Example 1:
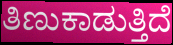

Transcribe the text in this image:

ತಿಣುಕಾಡುತ್ತಿದೆ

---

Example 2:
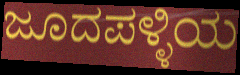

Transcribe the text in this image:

ಜೂದಪಳ್ಳಿಯ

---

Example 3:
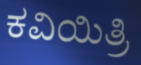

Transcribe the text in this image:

ಕವಿಯಿತ್ರಿ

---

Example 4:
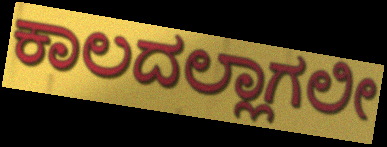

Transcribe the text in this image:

ಕಾಲದಲ್ಲಾಗಲೀ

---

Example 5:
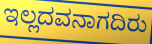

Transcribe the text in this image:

ಇಲ್ಲದವನಾಗದಿರು